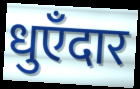
धुएँदार